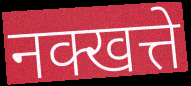
नक्खत्ते